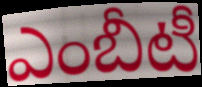
ఎంబీటీ